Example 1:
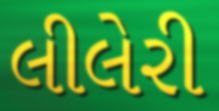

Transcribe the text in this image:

લીલેરી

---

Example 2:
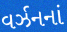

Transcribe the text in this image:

વર્ઝનનાં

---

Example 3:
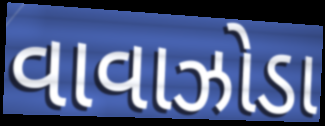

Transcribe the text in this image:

વાવાઝોડા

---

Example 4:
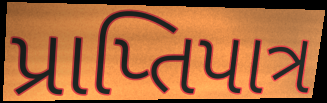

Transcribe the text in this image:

પ્રાપ્તિપાત્ર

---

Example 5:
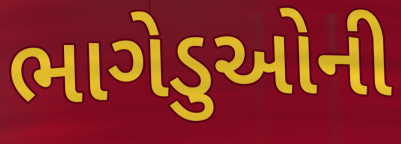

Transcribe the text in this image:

ભાગેડુઓની